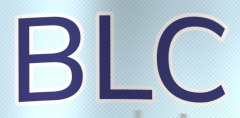
BLC